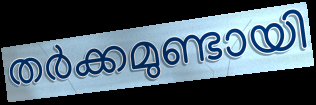
തർക്കമുണ്ടായി